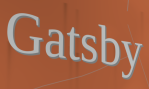
Gatsby